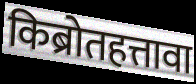
किब्रोतहत्तावा